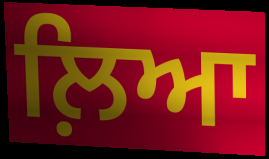
ਲ਼ਿਆ